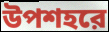
উপশহরে